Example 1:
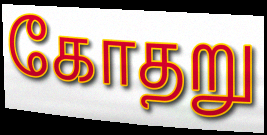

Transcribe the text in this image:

கோதறு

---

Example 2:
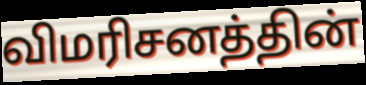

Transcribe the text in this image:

விமரிசனத்தின்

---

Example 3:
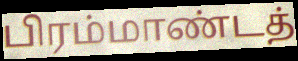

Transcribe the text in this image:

பிரம்மாண்டத்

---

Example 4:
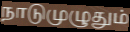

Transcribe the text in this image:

நாடுமுழுதும்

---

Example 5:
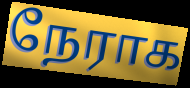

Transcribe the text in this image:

நேராக